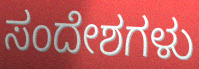
ಸಂದೇಶಗಳು